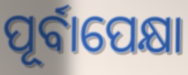
ପୂର୍ବାପେକ୍ଷା